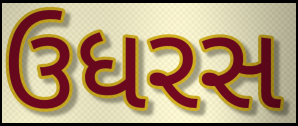
ઉધરસ